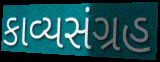
કાવ્યસંગ્રહ